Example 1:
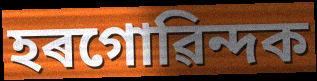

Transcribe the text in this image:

হৰগোৱিন্দক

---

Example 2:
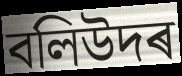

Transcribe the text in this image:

বলিউদৰ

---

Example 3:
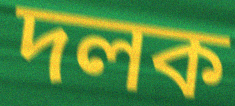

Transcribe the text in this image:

দলক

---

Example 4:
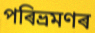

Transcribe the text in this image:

পৰিভ্ৰমণৰ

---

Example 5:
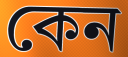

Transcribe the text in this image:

কেন